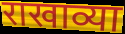
राखाव्या